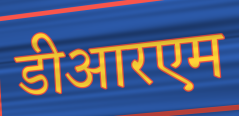
डीआरएम